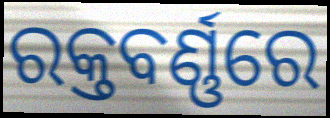
ରକ୍ତବର୍ଣ୍ଣରେ